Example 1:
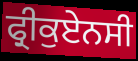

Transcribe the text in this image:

ਫ੍ਰੀਕੁਏਨਸੀ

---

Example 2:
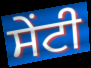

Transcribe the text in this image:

ਸੇਂਟੀ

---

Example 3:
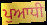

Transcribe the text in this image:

ਪੁਆਧੀ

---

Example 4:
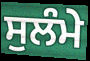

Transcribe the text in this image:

ਸੁਲੰਮੇ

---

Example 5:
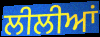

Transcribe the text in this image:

ਲੀਲੀਆਂ